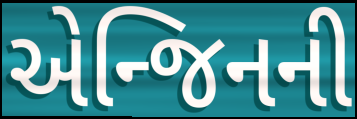
એન્જિનની